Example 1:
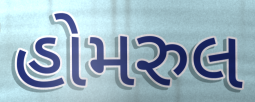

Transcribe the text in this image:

હોમરુલ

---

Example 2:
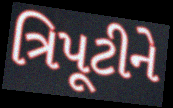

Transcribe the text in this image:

ત્રિપૂટીને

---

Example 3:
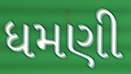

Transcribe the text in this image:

ધમણી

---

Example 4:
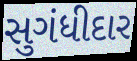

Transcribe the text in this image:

સુગંધીદાર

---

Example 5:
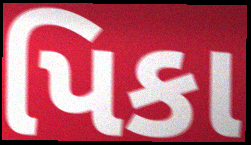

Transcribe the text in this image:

પિકા